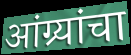
आंग्र्यांचा